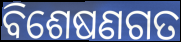
ବିଶେଷଣଗତ